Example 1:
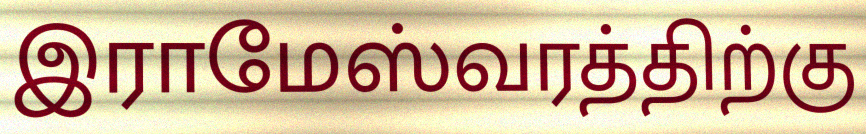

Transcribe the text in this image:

இராமேஸ்வரத்திற்கு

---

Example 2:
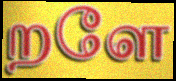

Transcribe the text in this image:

றளே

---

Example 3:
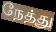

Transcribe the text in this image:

நேத்து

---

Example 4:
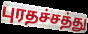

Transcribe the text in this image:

புரதச்சத்து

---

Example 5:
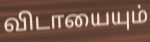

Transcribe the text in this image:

விடாயையும்